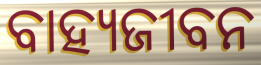
ବାହ୍ୟଜୀବନ